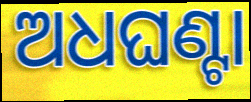
ଅଧଘଣ୍ଟା